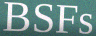
BSFs